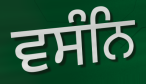
ਵਸੰਨਿ